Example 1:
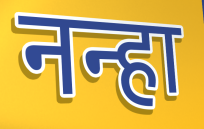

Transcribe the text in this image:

नन्हा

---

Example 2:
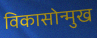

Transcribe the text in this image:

विकासोन्मुख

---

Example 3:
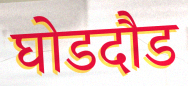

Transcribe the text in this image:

घोडदौड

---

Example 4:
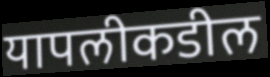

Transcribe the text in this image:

यापलीकडील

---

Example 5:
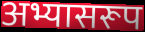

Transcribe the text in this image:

अभ्यासरूप